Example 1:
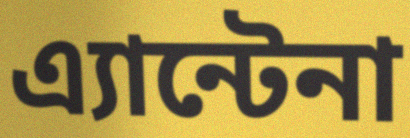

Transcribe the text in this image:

এ্যান্টেনা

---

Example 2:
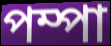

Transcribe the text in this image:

পম্পা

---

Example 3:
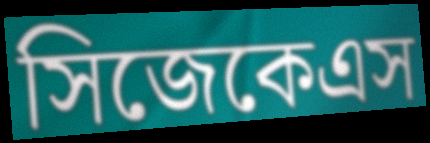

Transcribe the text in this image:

সিজেকেএস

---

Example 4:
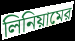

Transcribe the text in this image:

লিনিয়ামের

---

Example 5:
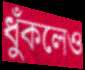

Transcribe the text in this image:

ধুঁকলেও